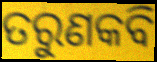
ତରୁଣକବି